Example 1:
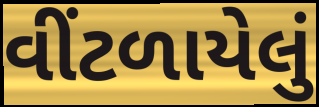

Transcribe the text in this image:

વીંટળાયેલું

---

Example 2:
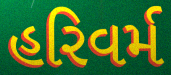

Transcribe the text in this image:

હરિવર્મ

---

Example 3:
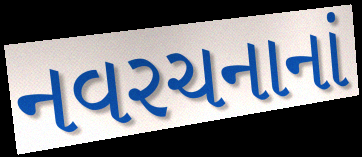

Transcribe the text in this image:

નવરચનાનાં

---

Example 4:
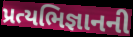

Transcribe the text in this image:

પ્રત્યભિજ્ઞાનની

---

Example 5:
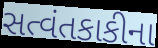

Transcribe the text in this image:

સત્વંતકાકીના